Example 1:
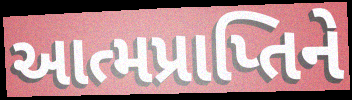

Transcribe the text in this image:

આત્મપ્રાપ્તિને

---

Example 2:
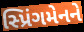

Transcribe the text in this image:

સ્પ્રિંગમેનને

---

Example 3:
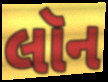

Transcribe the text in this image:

લૉન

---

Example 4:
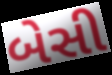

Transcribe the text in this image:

બેસી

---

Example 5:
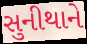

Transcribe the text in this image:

સુનીથાને